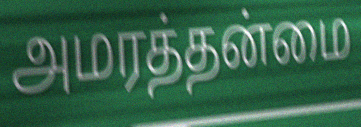
அமரத்தன்மை